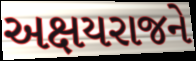
અક્ષયરાજને